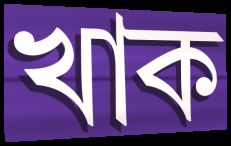
খাক